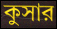
কুসার